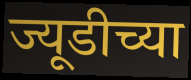
ज्यूडीच्या